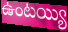
ఉంటయ్యి